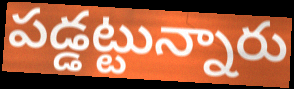
పడ్డట్టున్నారు